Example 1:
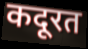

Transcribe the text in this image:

कदूरत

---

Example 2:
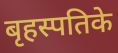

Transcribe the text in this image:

बृहस्पतिके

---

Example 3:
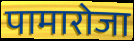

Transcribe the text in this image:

पामारोजा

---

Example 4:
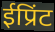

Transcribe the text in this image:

ईप्रिंट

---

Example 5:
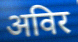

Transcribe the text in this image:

अविर